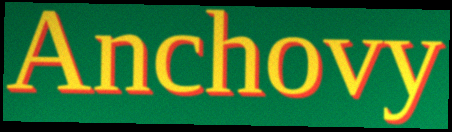
Anchovy